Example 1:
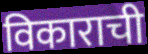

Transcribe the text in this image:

विकाराची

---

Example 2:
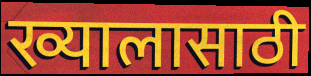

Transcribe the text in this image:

ख्यालासाठी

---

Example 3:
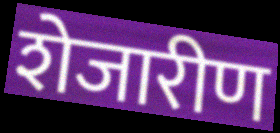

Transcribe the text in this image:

शेजारीण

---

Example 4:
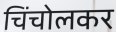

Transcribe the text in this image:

चिंचोलकर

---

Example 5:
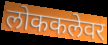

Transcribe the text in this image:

लोककलेवर